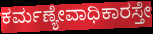
ಕರ್ಮಣ್ಯೇವಾಧಿಕಾರಸ್ತೇ